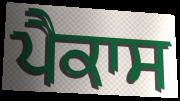
ਪੈਕਾਸ